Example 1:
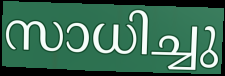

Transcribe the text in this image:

സാധിച്ചു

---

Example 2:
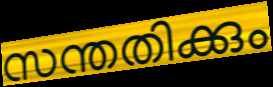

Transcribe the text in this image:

സന്തതിക്കും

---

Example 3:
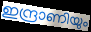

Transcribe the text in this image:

ഇന്ദ്രാണിയും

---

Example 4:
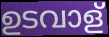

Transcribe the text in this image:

ഉടവാള്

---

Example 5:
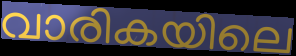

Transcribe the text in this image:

വാരികയിലെ